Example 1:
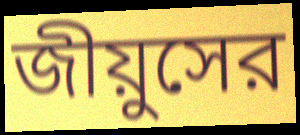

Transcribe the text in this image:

জীয়ুসের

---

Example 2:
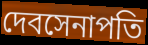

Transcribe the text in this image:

দেবসেনাপতি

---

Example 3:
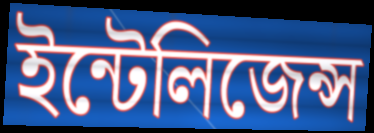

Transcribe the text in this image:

ইন্টেলিজেন্স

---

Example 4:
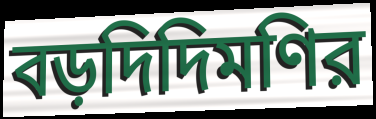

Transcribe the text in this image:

বড়দিদিমণির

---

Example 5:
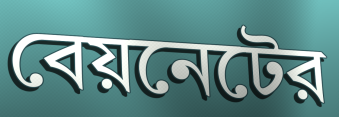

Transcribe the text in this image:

বেয়নেটের